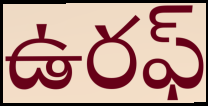
ఉరఫ్